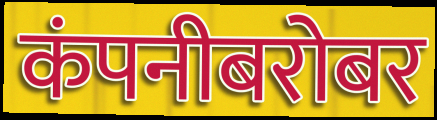
कंपनीबरोबर